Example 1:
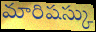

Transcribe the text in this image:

మారిషస్కు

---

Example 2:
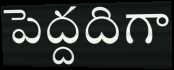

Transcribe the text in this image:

పెద్దదిగా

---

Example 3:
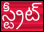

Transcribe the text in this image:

స్ట్రీట్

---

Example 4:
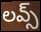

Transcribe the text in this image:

లవ్స్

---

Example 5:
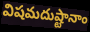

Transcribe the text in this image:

విషమదుష్టానాం